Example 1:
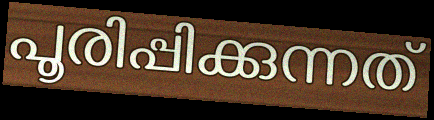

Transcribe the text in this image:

പൂരിപ്പിക്കുന്നത്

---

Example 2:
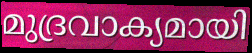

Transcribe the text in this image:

മുദ്രവാക്യമായി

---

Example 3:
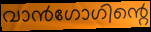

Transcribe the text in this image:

വാൻഗോഗിന്റെ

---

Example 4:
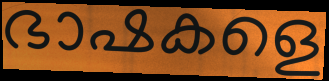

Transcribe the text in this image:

ഭാഷകളെ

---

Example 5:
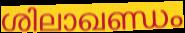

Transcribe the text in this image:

ശിലാഖണ്ഡം